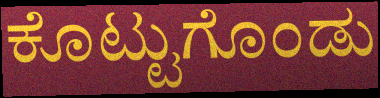
ಕೊಟ್ಟುಗೊಂಡು